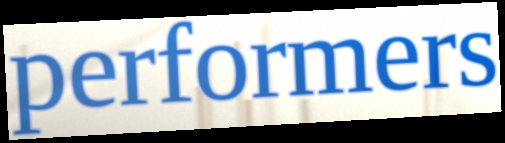
performers